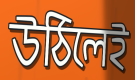
উঠিলেই